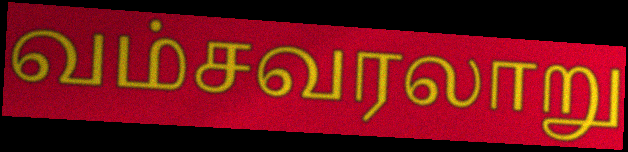
வம்சவரலாறு